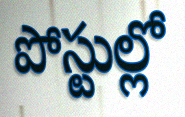
పోస్టుల్లో